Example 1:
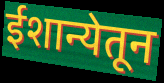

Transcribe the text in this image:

ईशान्येतून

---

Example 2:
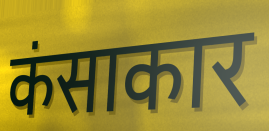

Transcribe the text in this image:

कंसाकार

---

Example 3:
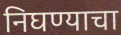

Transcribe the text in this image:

निघण्याचा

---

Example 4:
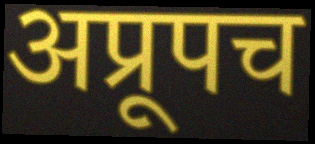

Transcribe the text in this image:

अप्रूपच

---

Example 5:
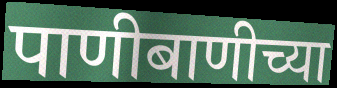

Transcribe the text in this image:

पाणीबाणीच्या